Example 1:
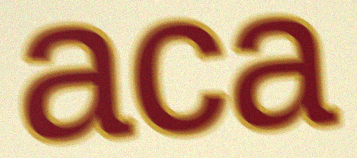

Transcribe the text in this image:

aca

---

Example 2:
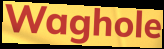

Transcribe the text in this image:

Waghole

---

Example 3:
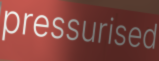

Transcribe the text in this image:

pressurised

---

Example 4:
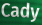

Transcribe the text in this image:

Cady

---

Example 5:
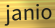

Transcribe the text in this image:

janio